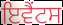
ਇਵੈਂਟਸ